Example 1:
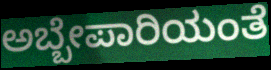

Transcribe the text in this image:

ಅಬ್ಬೇಪಾರಿಯಂತೆ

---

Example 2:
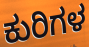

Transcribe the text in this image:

ಕುರಿಗಳ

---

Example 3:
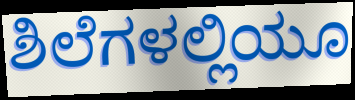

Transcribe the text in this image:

ಶಿಲೆಗಳಲ್ಲಿಯೂ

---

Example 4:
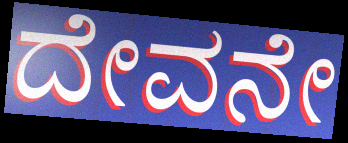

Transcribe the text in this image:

ದೇವನೇ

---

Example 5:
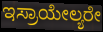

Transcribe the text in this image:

ಇಸ್ರಾಯೇಲ್ಯರೇ